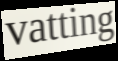
vatting